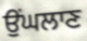
ਉਂਘਲਾਣ